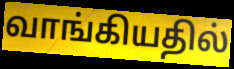
வாங்கியதில்